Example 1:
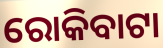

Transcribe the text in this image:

ରୋକିବାଟା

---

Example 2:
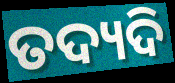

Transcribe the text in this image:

ତଦ୍ୟଦି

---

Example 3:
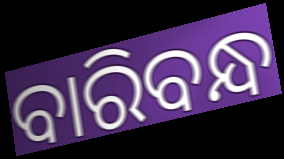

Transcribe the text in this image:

ବାରିବନ୍ଧ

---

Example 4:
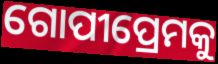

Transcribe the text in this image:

ଗୋପୀପ୍ରେମକୁ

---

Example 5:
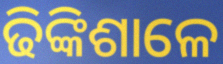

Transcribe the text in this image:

ଢିଙ୍କିଶାଳେ